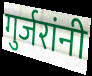
गुर्जरांनी